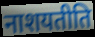
नाशयतीति